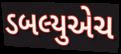
ડબલ્યુએચ